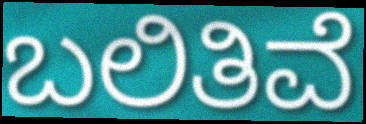
ಬಲಿತಿವೆ